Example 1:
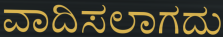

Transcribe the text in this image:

ವಾದಿಸಲಾಗದು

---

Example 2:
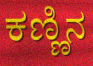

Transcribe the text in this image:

ಕಣ್ಣಿನ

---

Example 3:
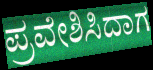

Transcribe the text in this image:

ಪ್ರವೇಶಿಸಿದಾಗ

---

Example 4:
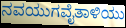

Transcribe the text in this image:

ನವಯುಗವೈತಾಳಿಯು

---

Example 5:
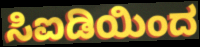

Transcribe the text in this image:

ಸಿಐಡಿಯಿಂದ